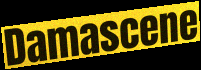
Damascene